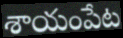
శాయంపేట